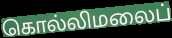
கொல்லிமலைப்